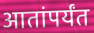
आतांपर्यंत